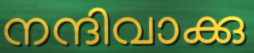
നന്ദിവാക്കു